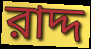
রাদ্দ